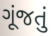
ગૂંજતું